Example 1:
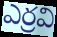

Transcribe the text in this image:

ఎర్రవి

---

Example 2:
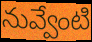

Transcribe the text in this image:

నువ్వేంటి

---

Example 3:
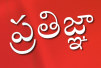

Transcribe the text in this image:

ప్రతిజ్ఞా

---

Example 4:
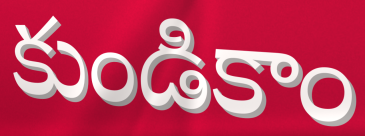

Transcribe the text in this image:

కుండికాం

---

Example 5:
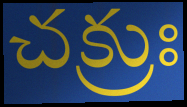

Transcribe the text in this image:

చక్రుః